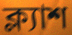
ক্ল্যাশ